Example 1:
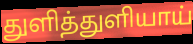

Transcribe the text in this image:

துளித்துளியாய்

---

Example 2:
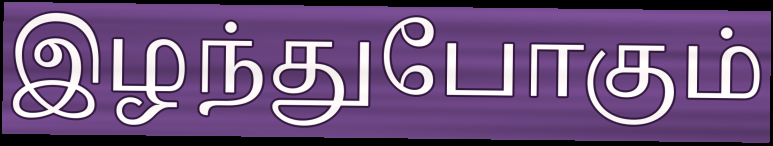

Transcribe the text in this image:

இழந்துபோகும்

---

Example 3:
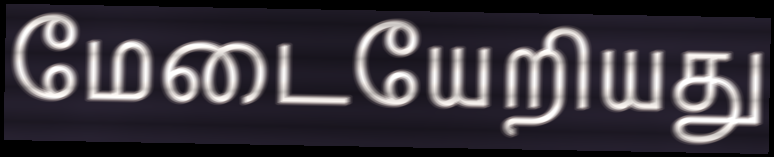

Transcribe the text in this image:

மேடையேறியது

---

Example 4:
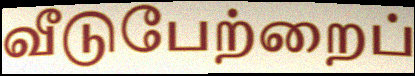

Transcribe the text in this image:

வீடுபேற்றைப்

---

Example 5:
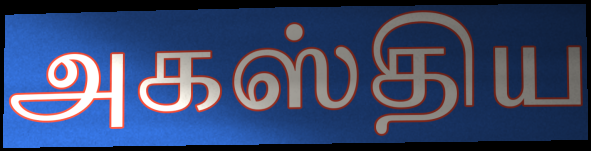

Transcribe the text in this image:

அகஸ்திய